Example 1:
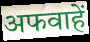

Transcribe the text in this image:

अफवाहें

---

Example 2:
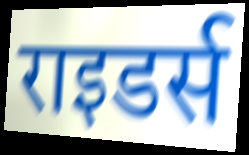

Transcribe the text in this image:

राइडर्स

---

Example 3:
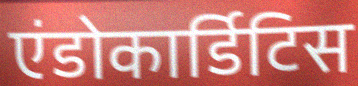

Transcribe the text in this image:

एंडोकार्डिटिस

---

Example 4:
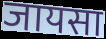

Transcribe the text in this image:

जायसा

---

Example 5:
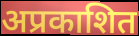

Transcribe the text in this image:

अप्रकाशित